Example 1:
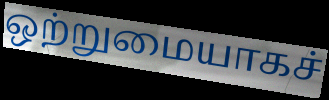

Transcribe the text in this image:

ஒற்றுமையாகச்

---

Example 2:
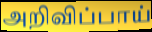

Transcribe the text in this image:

அறிவிப்பாய்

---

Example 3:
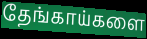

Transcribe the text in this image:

தேங்காய்களை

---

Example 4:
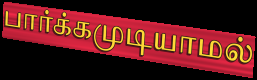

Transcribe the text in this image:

பார்க்கமுடியாமல்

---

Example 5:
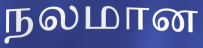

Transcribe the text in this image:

நலமான